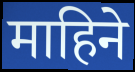
माहिने